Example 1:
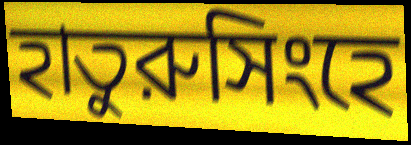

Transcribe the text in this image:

হাতুরুসিংহে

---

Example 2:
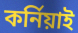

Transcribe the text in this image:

কর্নিয়াই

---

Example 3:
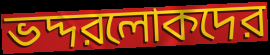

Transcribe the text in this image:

ভদ্দরলোকদের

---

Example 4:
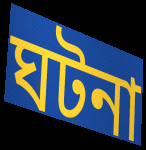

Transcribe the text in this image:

ঘটনা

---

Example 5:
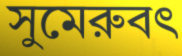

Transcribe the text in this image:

সুমেরুবৎ